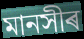
মানসীৰ